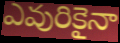
ఎవురికైనా